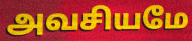
அவசியமே